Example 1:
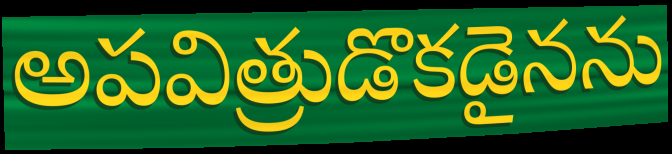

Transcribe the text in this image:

అపవిత్రుడొకడైనను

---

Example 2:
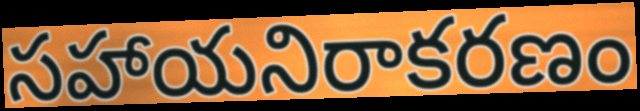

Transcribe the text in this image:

సహాయనిరాకరణం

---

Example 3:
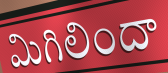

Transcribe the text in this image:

మిగిలిందా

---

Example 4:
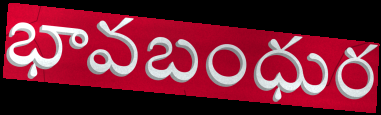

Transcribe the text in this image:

భావబంధుర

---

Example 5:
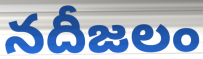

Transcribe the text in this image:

నదీజలం